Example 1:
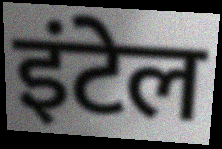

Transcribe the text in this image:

इंटेल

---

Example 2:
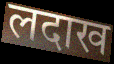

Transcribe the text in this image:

लदाख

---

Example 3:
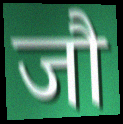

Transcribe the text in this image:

जौ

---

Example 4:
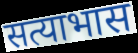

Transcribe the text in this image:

सत्याभास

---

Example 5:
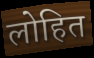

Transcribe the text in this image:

लोहित